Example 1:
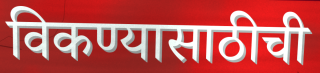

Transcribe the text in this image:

विकण्यासाठीची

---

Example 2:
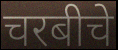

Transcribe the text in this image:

चरबीचे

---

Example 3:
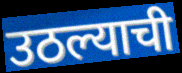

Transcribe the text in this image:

उठल्याची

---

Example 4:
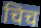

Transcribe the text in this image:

चिच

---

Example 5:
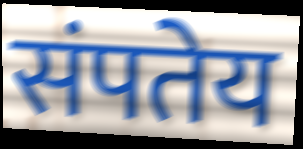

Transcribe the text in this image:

संपतेय